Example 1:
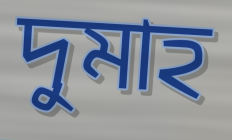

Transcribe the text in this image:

দুমাহ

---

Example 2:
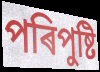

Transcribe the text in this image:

পৰিপুষ্টি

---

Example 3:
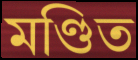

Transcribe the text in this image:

মণ্ডিত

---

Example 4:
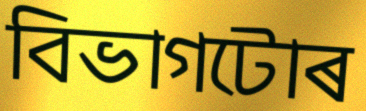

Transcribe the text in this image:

বিভাগটোৰ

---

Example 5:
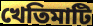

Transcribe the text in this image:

খেতিমাটি